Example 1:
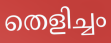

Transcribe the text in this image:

തെളിച്ചം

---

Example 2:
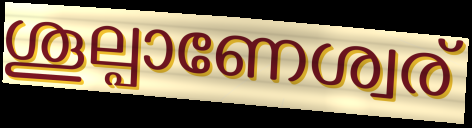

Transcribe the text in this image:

ശൂല്പാണേശ്വര്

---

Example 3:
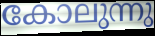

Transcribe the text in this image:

കോലുന്നു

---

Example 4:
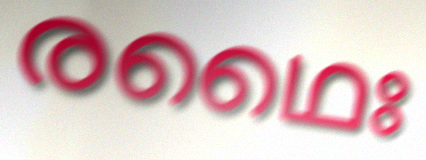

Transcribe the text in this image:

രഥൈഃ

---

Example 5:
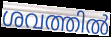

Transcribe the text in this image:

ശവത്തിൽ